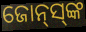
ଜୋନ୍‌ସ୍‌ଙ୍କ